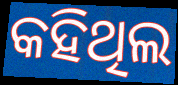
କହିଥିଲ